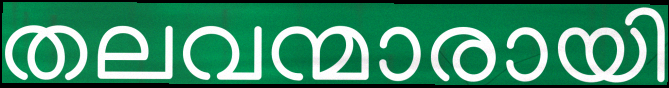
തലവന്മാരായി